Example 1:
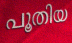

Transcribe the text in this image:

പൂതിയ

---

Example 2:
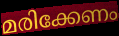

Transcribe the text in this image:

മരിക്കേണം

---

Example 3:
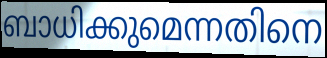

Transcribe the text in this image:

ബാധിക്കുമെന്നതിനെ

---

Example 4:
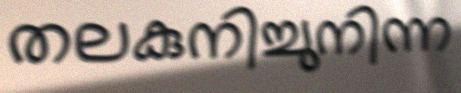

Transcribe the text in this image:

തലകുനിച്ചുനിന്ന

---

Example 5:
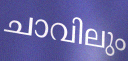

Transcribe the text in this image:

ചാവിലും